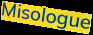
Misologue